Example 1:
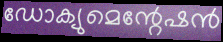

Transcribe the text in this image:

ഡോക്യുമെന്റേഷൻ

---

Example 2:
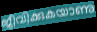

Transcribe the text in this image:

ജീവിക്കുകയാണു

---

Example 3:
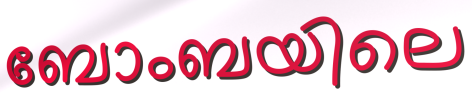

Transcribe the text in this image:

ബോംബയിലെ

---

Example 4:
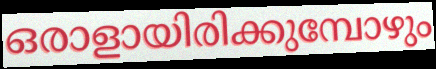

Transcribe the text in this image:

ഒരാളായിരിക്കുമ്പോഴും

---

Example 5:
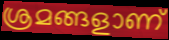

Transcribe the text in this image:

ശ്രമങ്ങളാണ്